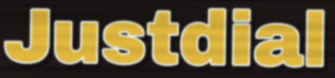
Justdial